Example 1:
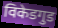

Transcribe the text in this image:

विकेडगुड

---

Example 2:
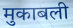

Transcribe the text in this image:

मुकाबली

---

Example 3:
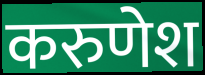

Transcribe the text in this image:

करुणेश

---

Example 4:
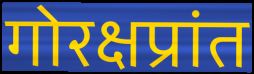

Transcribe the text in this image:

गोरक्षप्रांत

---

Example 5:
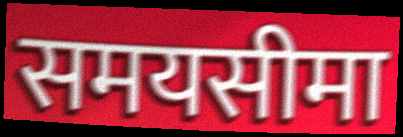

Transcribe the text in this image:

समयसीमा